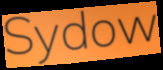
Sydow